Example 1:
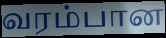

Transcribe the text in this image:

வரம்பான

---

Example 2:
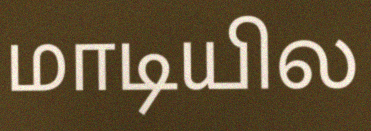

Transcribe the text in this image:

மாடியில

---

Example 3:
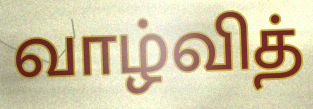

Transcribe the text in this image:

வாழ்வித்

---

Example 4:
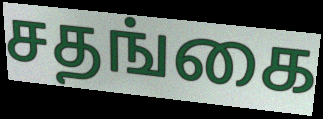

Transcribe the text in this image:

சதங்கை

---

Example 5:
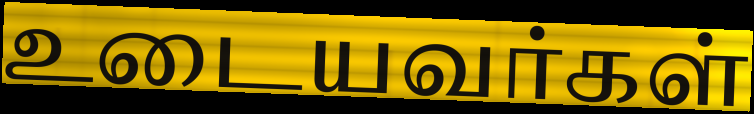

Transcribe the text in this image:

உடையவர்கள்